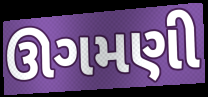
ઊગમણી